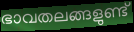
ഭാവതലങ്ങളുണ്ട്